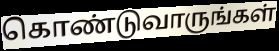
கொண்டுவாருங்கள்